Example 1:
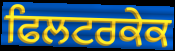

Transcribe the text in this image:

ਫਿਲਟਰਕੇਕ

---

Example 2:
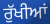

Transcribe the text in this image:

ਰੁੱਖੀਆਂ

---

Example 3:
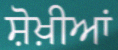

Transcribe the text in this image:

ਸ਼ੋਖ਼ੀਆਂ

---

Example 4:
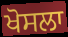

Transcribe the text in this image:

ਖੋਸਲਾ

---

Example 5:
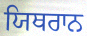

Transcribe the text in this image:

ਯਿਥਰਾਨ